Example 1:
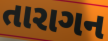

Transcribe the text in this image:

તારાગન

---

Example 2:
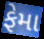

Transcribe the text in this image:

ફેમા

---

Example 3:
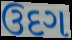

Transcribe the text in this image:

ઉદગ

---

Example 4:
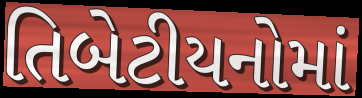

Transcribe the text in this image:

તિબેટીયનોમાં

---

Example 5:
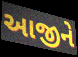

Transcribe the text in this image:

આજીને